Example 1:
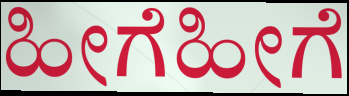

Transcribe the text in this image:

ಹೀಗೆಹೀಗೆ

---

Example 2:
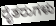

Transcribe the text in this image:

ರೈತರುಗಳು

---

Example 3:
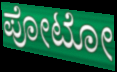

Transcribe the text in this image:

ಪೋಟೋ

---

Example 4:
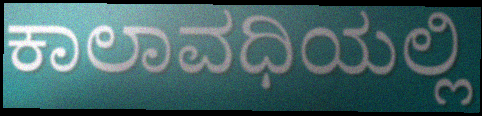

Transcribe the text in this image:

ಕಾಲಾವಧಿಯಲ್ಲಿ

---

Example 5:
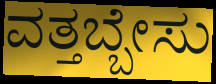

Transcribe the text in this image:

ವತ್ತಬ್ಬೇಸು